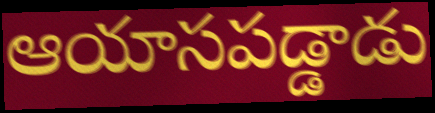
ఆయాసపడ్డాడు